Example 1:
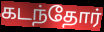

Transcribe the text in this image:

கடந்தோர்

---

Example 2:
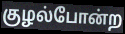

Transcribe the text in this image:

குழல்போன்ற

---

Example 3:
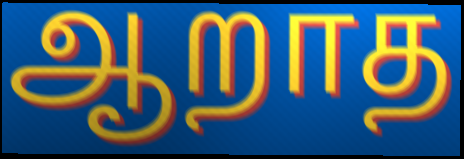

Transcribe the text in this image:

ஆறாத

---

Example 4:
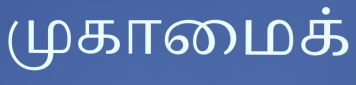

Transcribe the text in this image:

முகாமைக்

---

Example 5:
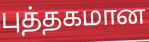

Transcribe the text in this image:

புத்தகமான